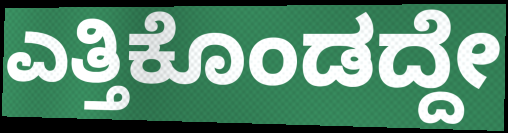
ಎತ್ತಿಕೊಂಡದ್ದೇ